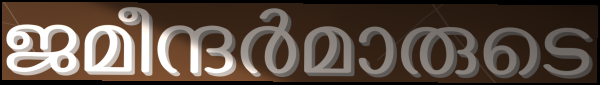
ജമീന്ദർമാരുടെ